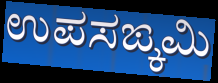
ಉಪಸಙ್ಕಮಿ